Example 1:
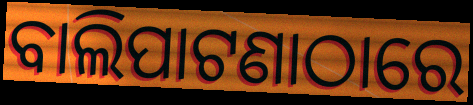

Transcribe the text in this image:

ବାଲିପାଟଣାଠାରେ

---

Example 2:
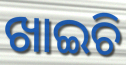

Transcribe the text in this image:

ଖାଇଚି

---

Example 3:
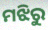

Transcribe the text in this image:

ମଝିରୁ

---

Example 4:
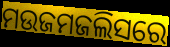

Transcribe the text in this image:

ମଉଜମଜଲିସରେ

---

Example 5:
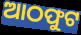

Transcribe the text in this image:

ଆଠଫୁଟ